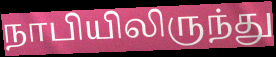
நாபியிலிருந்து